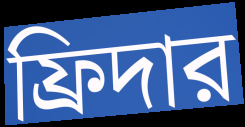
ফ্রিদার